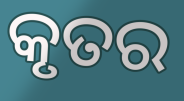
କୃତର